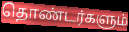
தொண்டர்களும்